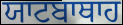
ਯਾਟਬਾਥਾਹ